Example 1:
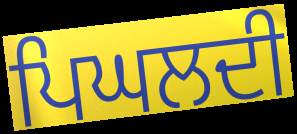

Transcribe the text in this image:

ਪਿਘਲਦੀ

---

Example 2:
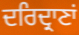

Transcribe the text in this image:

ਦਰਿਦ੍ਰਾਣਾਂ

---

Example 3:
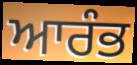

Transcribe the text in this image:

ਆਰੰਭ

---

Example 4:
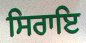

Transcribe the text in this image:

ਸਿਰਾਇ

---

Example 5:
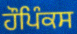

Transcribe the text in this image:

ਹੌਪਿੰਕਸ